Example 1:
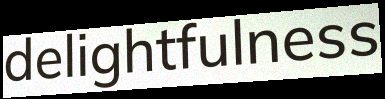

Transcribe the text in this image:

delightfulness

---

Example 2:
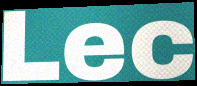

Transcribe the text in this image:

Lec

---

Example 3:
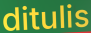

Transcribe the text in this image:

ditulis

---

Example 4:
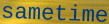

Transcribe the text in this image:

sametime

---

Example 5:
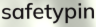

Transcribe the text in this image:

safetypin